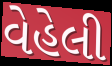
વેહેલી